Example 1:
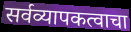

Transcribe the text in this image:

सर्वव्यापकत्वाचा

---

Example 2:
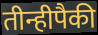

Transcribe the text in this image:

तीन्हीपैकी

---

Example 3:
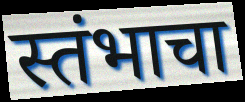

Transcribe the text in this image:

स्तंभाचा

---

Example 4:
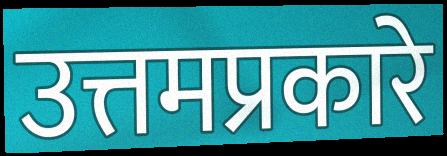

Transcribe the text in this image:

उत्तमप्रकारे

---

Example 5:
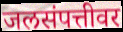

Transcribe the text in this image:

जलसंपत्तीवर